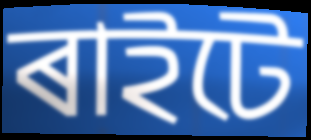
ৰাইটে